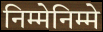
निम्मेनिम्मे